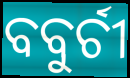
ବବୁର୍ଚୀ